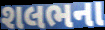
શલભના